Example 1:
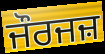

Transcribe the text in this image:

ਜੌਰਜਜ਼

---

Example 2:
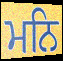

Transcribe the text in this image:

ਮਨਿ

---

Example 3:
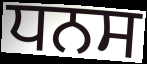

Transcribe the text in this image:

ਧਨਸ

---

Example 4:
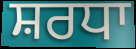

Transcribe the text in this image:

ਸ਼ਰਧਾ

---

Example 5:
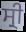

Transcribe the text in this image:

ਸ੍ਰੀ